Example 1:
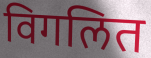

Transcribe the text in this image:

विगलित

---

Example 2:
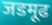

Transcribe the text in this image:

जडमूढ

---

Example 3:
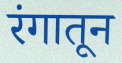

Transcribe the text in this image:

रंगातून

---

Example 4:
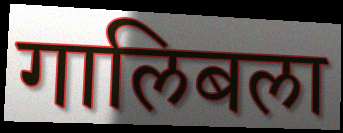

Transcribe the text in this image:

गालिबला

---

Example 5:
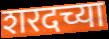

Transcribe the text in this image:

शरदच्या